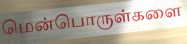
மென்பொருள்களை